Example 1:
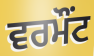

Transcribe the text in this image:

ਵਰਮੌਂਟ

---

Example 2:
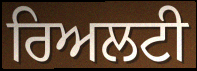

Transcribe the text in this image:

ਰਿਅਲਟੀ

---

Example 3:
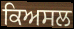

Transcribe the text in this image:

ਕਿਅਸਲ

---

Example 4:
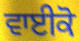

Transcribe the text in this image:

ਵਾਈਕੋ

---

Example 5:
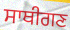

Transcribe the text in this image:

ਸਾਥੀਗਣ